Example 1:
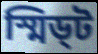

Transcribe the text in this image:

স্মিড্ট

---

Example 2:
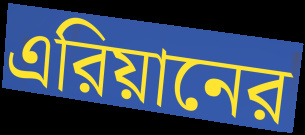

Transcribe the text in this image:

এরিয়ানের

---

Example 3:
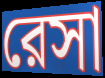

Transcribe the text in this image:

রেসা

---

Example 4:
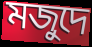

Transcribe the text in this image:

মজুদে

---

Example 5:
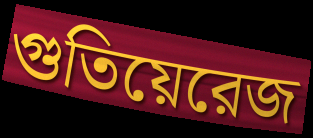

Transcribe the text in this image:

গুতিয়েরেজ